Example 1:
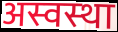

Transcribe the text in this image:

अस्वस्था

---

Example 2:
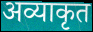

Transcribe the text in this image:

अव्याकृत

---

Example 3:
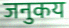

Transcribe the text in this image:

जनुकय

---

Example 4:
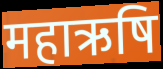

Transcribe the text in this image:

महाऋषि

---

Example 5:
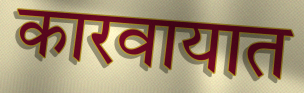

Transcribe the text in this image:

कारवायात